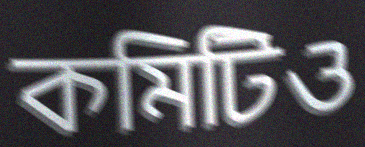
কমিটিও